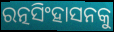
ରତ୍ନସିଂହାସନକୁ